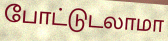
போட்டுடலாமா